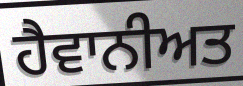
ਹੈਵਾਨੀਅਤ